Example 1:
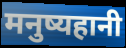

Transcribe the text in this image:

मनुष्यहानी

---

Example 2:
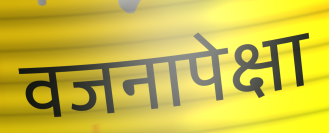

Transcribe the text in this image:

वजनापेक्षा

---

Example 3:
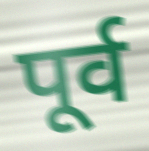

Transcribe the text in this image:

पूर्व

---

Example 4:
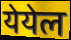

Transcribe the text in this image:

येयेल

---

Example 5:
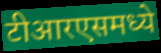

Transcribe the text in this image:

टीआरएसमध्ये